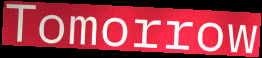
Tomorrow